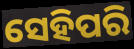
ସେହିପରି